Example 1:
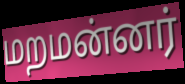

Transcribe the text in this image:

மறமன்னர்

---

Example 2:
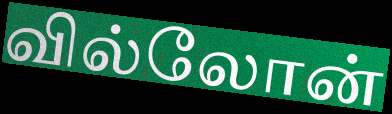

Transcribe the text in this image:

வில்லோன்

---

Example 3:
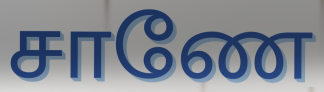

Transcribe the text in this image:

சாணே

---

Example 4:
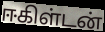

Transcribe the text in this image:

ஈகிள்டன்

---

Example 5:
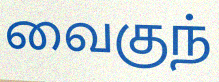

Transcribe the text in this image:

வைகுந்